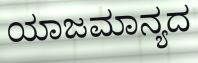
ಯಾಜಮಾನ್ಯದ